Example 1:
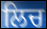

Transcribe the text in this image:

ਲਿਚ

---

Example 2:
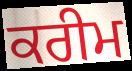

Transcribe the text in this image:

ਕਰੀਮ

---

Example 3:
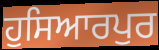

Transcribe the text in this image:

ਹੁਸਿਆਰਪੁਰ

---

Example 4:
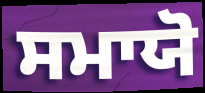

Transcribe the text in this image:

ਸਮਾਯੋ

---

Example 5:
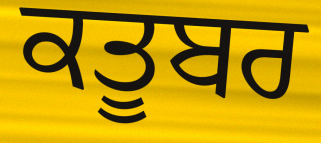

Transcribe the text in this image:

ਕਤੂਬਰ